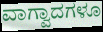
ವಾಗ್ವಾದಗಳೂ